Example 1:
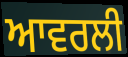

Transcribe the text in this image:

ਆਵਰਲੀ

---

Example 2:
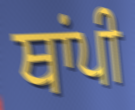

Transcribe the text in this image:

ਥਾਂਪੀ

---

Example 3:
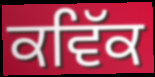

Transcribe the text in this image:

ਕਵਿੱਕ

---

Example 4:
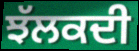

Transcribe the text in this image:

ਝੱਲਕਦੀ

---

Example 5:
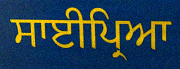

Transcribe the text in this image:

ਸਾਈਪ੍ਰਿਆ